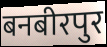
बनबीरपुर